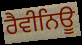
ਰੈਵੀਨਿਊ